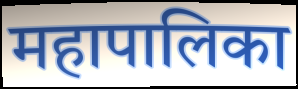
महापालिका